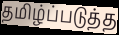
தமிழ்ப்படுத்த